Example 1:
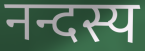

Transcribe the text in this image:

नन्दस्य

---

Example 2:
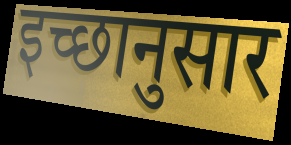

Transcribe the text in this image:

इच्‍छानुसार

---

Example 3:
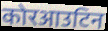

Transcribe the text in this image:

कोरआउटिन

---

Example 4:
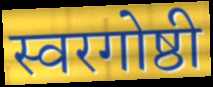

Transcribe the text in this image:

स्वरगोष्ठी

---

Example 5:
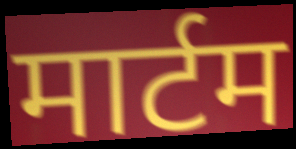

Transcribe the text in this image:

मार्टम